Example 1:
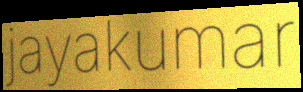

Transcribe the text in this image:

jayakumar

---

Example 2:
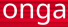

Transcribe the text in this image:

onga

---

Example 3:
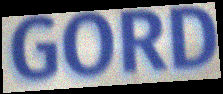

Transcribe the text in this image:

GORD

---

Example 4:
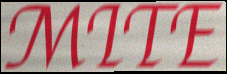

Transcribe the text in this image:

MITE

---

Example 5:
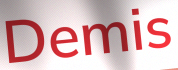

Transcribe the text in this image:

Demis